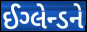
ઈગ્લેન્ડને